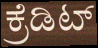
ಕ್ರೆಡಿಟ್